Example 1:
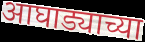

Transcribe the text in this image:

आघाड्याच्या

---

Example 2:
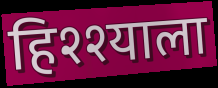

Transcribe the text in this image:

हिश्श्याला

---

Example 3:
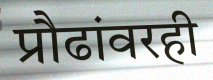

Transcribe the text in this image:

प्रौढांवरही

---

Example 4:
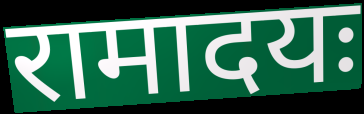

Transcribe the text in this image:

रामादयः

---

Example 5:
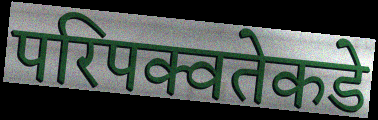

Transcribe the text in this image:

परिपक्वतेकडे